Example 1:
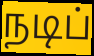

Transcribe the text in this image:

நடிப்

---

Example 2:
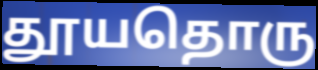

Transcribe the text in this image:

தூயதொரு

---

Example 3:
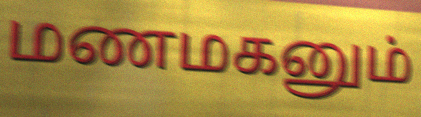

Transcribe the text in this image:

மணமகனும்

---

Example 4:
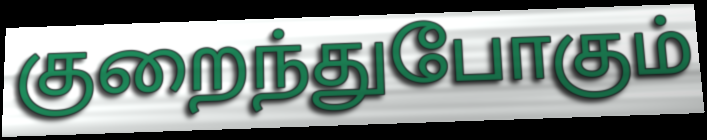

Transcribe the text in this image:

குறைந்துபோகும்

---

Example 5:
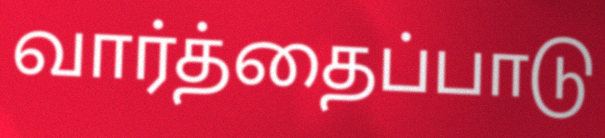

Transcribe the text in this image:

வார்த்தைப்பாடு